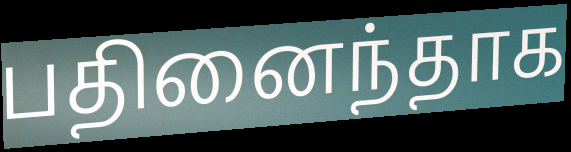
பதினைந்தாக